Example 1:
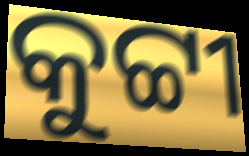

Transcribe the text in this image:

କୁଟ୍ଟୀ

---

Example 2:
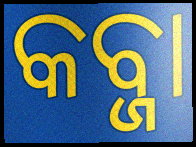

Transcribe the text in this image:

କବ୍ଜା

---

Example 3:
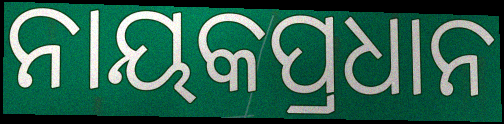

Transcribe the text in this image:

ନାୟକପ୍ରଧାନ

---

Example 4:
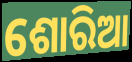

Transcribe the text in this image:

ଶୋରିଆ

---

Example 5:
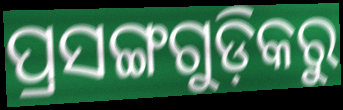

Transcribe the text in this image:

ପ୍ରସଙ୍ଗଗୁଡ଼ିକରୁ